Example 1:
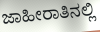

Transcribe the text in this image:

ಜಾಹೀರಾತಿನಲ್ಲಿ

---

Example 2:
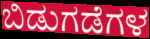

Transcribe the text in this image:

ಬಿಡುಗಡೆಗಳ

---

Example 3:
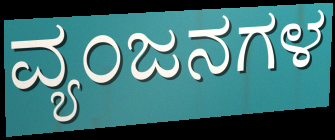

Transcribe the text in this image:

ವ್ಯಂಜನಗಳ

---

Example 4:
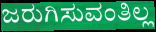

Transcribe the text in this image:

ಜರುಗಿಸುವಂತಿಲ್ಲ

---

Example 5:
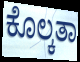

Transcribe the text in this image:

ಕೊಲ್ಕತಾ